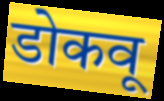
डोकवू